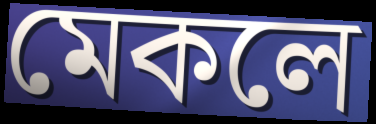
মেকলে